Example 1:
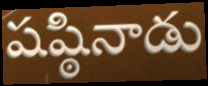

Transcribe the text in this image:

షష్ఠినాడు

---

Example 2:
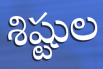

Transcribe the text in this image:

శిష్టుల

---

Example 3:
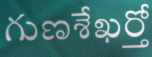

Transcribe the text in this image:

గుణశేఖర్తో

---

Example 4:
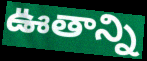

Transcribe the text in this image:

ఊతాన్ని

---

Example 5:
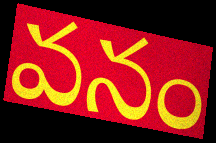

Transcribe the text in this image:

వనం